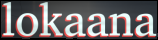
lokaana